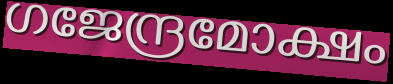
ഗജേന്ദ്രമോക്ഷം